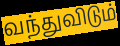
வந்துவிடும்